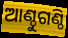
ଆଣ୍ଠୁଗଣ୍ଠି